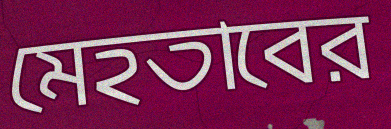
মেহতাবের